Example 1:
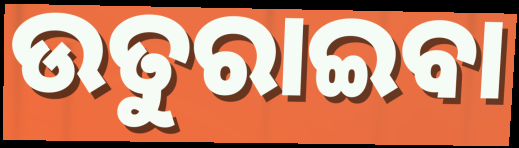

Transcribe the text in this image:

ଉତୁରାଇବା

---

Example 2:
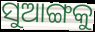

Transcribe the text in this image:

ସୁଆଙ୍ଗକୁ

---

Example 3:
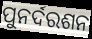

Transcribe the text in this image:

ପୁନର୍ଦରଶନ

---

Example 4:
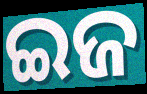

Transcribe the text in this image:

ଇଜ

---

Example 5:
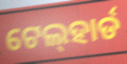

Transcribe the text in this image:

ଟେଲ୍‍ହାର୍ଡ